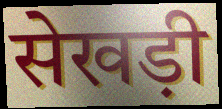
सेखड़ी